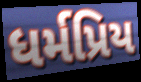
ધર્મપ્રિય